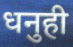
धनुही